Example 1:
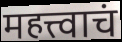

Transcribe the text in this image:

महत्त्वाचं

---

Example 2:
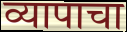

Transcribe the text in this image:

व्यापाचा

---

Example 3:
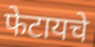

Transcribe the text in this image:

फेटायचे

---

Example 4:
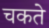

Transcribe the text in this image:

चकते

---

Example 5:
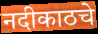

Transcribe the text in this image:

नदीकाठचे